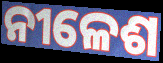
ନୀଳେଶ